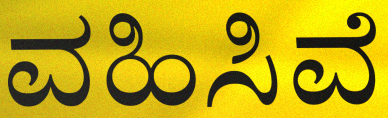
ವಹಿಸಿವೆ